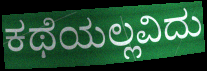
ಕಥೆಯಲ್ಲವಿದು